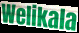
Welikala